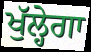
ਖੁੱਲ੍ਹੇਗਾ